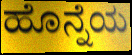
ಹೊನ್ನೆಯ